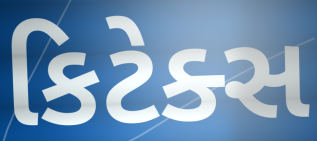
કિટેક્સ